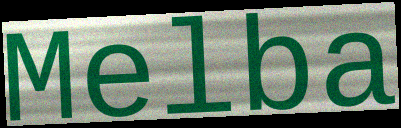
Melba